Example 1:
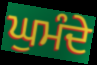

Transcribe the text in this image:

ਘੁਮੰਦੇ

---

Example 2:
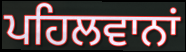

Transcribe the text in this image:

ਪਹਿਲਵਾਨਾਂ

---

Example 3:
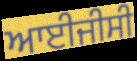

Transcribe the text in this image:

ਆਈਜੀਸੀ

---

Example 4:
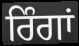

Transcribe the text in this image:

ਰਿੰਗਾਂ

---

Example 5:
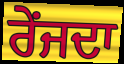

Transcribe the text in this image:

ਰੇਂਜਦਾ